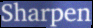
Sharpen